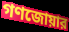
গণজোয়ার